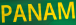
PANAM